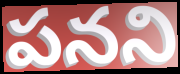
పనని